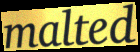
malted